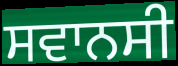
ਸਵਾਨਸੀ